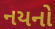
નયનો